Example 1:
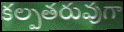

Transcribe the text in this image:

కల్పతరువుగా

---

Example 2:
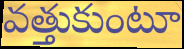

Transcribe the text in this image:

వత్తుకుంటూ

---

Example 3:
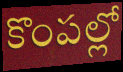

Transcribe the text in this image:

కొంపల్లో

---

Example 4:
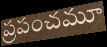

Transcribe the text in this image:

ప్రపంచమూ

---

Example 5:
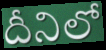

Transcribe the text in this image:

దీనిలో